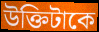
উক্তিটাকে